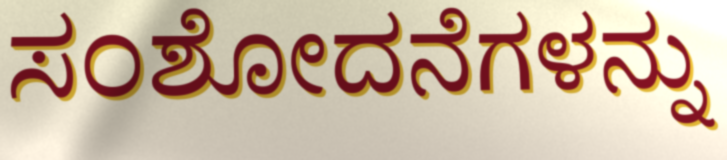
ಸಂಶೋದನೆಗಳನ್ನು